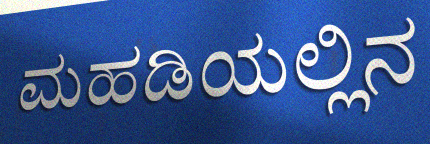
ಮಹಡಿಯಲ್ಲಿನ